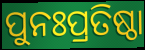
ପୁନଃପ୍ରତିଷ୍ଠା